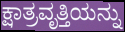
ಕ್ಷಾತ್ರವೃತ್ತಿಯನ್ನು